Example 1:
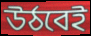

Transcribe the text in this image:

উঠবেই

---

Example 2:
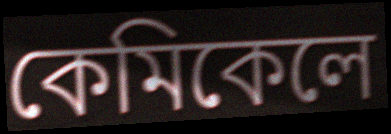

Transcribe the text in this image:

কেমিকেলে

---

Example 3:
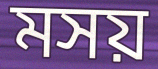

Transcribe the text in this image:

মসয়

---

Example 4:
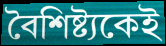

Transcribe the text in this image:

বৈশিষ্ট্যকেই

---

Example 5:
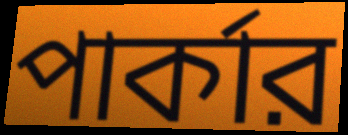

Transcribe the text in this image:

পার্কার